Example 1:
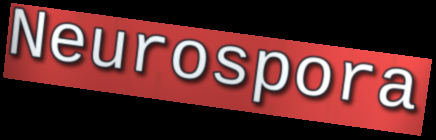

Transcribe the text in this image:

Neurospora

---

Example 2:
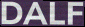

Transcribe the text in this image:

DALF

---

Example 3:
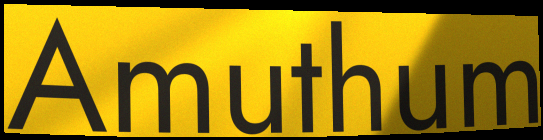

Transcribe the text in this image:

Amuthum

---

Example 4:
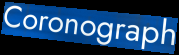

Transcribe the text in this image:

Coronograph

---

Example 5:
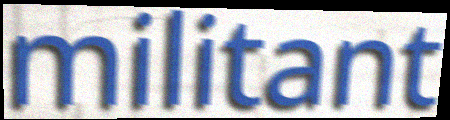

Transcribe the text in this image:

militant